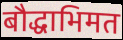
बौद्धाभिमत